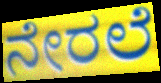
ನೇರಲೆ